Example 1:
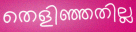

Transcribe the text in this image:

തെളിഞ്ഞതില്ല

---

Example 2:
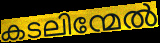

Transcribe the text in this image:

കടലിന്മേൽ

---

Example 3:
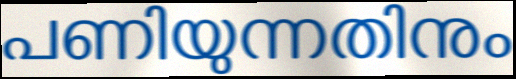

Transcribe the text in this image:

പണിയുന്നതിനും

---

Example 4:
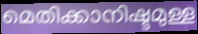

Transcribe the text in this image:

മെതിക്കാനിഷ്ടമുള്ള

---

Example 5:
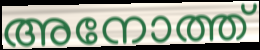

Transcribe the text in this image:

അനോത്ത്